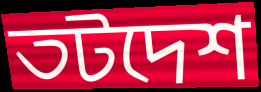
তটদেশ